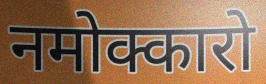
नमोक्कारो